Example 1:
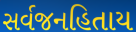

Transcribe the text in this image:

સર્વજનહિતાય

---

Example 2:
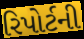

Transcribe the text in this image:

રિપોર્ટની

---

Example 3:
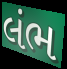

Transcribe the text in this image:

લંભ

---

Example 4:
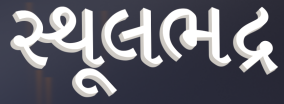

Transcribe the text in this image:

સ્થૂલભદ્ર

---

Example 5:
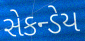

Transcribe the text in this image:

સેકન્ડેય